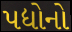
પદ્યોનો